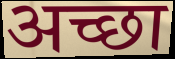
अच्छा